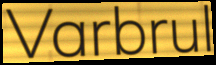
Varbrul